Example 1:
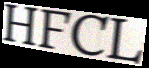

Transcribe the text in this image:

HFCL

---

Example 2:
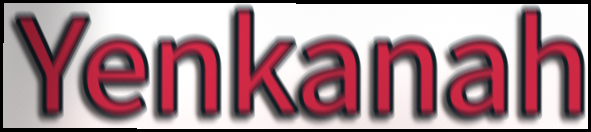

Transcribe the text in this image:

Yenkanah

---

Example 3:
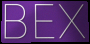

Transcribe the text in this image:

BEX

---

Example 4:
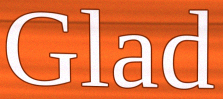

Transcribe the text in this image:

Glad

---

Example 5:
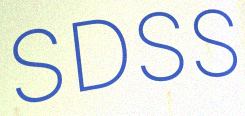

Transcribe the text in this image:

SDSS